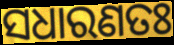
ସଧାରଣତଃ